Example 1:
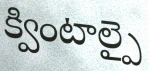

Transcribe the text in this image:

క్వింటాల్పై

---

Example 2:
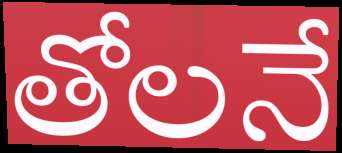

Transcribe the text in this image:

తోలనే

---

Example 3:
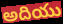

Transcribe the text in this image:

అదియు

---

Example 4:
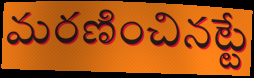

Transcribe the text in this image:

మరణించినట్టే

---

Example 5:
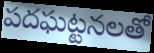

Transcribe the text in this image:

పదఘట్టనలతో